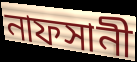
নাফসানী